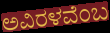
ಅವಿರಳವೆಂಬ